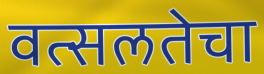
वत्सलतेचा